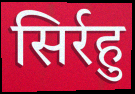
सिर्रहु